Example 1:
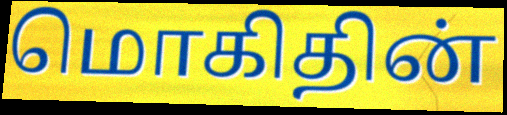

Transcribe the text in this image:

மொகிதின்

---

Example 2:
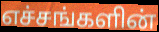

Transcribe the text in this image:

எச்சங்களின்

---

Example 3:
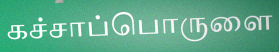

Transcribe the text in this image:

கச்சாப்பொருளை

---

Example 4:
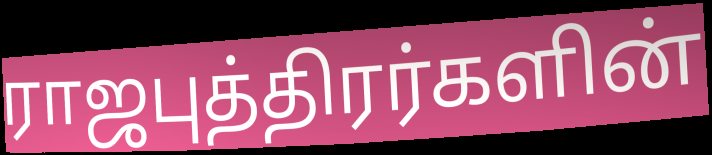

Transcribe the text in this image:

ராஜபுத்திரர்களின்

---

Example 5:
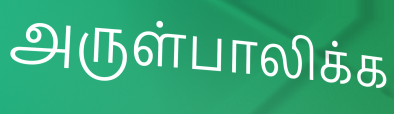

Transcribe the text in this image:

அருள்பாலிக்க